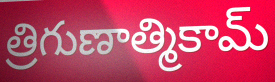
త్రిగుణాత్మికామ్